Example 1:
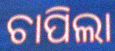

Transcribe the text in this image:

ଚାପିଲା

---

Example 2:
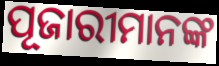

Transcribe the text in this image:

ପୂଜାରୀମାନଙ୍କ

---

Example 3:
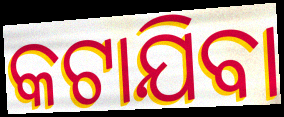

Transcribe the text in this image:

କଟାଯିବା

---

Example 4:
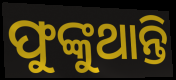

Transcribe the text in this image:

ଫୁଙ୍କୁଥାନ୍ତି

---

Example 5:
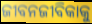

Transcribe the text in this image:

ଜୀବନଜୀବିକାକୁ